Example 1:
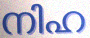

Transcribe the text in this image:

നിഹ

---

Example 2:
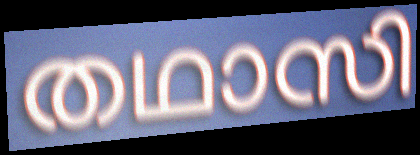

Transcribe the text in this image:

തഥാസി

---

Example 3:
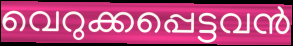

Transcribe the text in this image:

വെറുക്കപ്പെട്ടവൻ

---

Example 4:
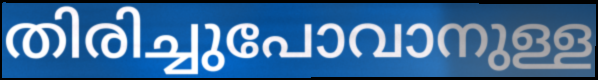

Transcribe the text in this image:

തിരിച്ചുപോവാനുള്ള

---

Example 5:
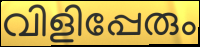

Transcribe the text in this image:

വിളിപ്പേരും